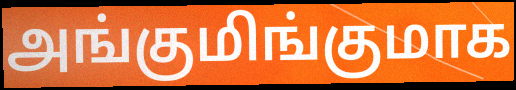
அங்குமிங்குமாக